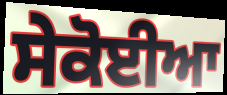
ਸੇਕੋਈਆ